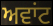
ਅਵਾਂਟ